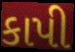
કાપી